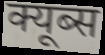
क्यूब्स